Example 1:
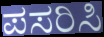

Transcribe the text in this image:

ಪಸರಿಸಿ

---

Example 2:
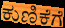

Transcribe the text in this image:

ಕುಣಿಕೆಗೆ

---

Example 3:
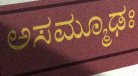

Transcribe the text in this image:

ಅಸಮ್ಮೂಢಃ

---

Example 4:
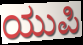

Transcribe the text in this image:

ಯುಪಿ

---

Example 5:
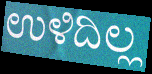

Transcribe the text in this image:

ಉಳಿದಿಲ್ಲ